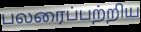
பலரைப்பற்றிய